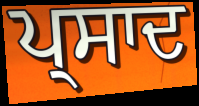
ਪ੍ਸਾਦ